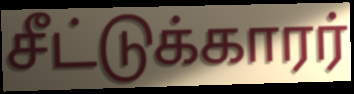
சீட்டுக்காரர்